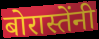
बोरास्तेंनी